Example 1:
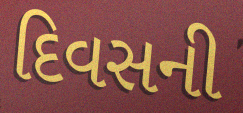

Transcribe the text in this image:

દિવસની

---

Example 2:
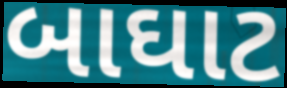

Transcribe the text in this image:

બાઘાટ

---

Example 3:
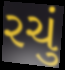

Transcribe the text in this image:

રચું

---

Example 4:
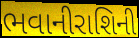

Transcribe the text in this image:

ભવાનીરાશિની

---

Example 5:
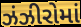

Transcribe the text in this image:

ઝંઝીરોમાં